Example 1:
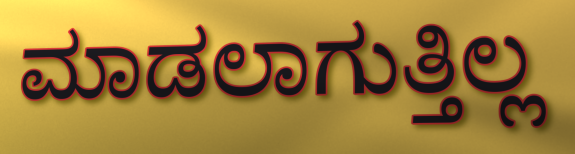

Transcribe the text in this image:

ಮಾಡಲಾಗುತ್ತಿಲ್ಲ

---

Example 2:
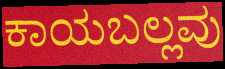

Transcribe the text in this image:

ಕಾಯಬಲ್ಲವು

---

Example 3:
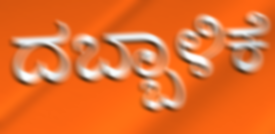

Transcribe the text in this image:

ದಬ್ಬಾಳಿಕೆ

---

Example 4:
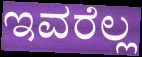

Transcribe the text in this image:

ಇವರೆಲ್ಲ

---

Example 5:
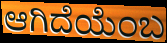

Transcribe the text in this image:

ಆಗಿದೆಯೆಂಬ